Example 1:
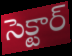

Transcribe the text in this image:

సెక్టార్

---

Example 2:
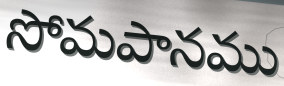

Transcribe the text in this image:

సోమపానము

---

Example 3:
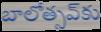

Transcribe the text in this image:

బాలోత్సవ్‌కు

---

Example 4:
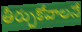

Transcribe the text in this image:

తీర్చుకోవాలనే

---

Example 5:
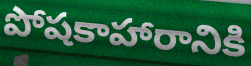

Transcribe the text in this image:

పోషకాహారానికి